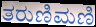
ತರುಣಿಮಣಿ